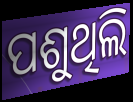
ପଶୁଥିଲି